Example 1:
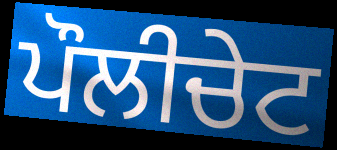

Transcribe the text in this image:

ਪੌਲੀਚੇਟ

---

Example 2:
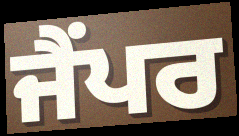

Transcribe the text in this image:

ਜੈਂਪਰ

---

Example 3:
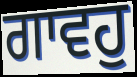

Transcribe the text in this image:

ਗਾਵਹੁ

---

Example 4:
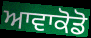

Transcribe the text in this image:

ਆਵਾਕੋਡੋ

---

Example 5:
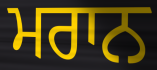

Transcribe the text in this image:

ਮਰਾਨ